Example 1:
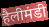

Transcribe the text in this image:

हैलीमंडी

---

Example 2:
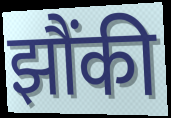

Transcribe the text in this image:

झौंकी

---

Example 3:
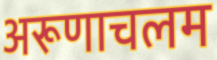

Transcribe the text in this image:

अरूणाचलम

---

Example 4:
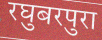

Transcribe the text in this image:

रघुबरपुरा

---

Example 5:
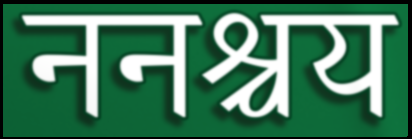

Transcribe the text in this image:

ननश्चय